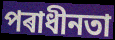
পৰাধীনতা